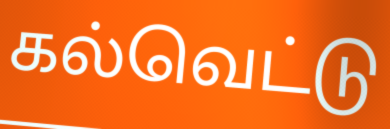
கல்வெட்டு